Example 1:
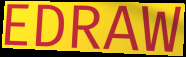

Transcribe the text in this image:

EDRAW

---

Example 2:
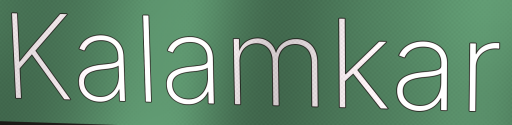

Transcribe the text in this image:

Kalamkar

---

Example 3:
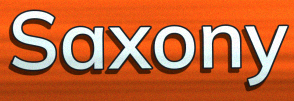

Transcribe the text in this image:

Saxony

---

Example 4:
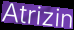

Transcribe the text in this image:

Atrizin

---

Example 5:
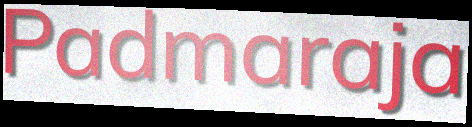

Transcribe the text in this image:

Padmaraja